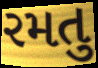
રમતુ